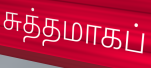
சுத்தமாகப்